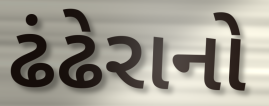
ઢંઢેરાનો